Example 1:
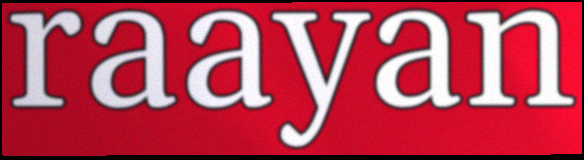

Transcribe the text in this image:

raayan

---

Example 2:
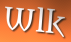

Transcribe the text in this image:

Wlk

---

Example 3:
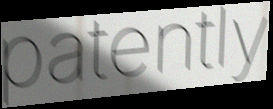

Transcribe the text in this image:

patently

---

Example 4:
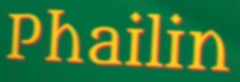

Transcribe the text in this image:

Phailin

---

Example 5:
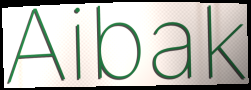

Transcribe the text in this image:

Aibak